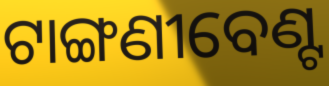
ଟାଙ୍ଗଣୀବେଣ୍ଟ